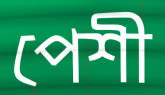
পেশী